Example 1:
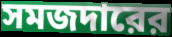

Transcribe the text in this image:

সমজদারের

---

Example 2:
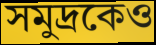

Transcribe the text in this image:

সমুদ্রকেও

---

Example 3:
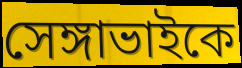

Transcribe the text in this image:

সেঙ্গাভাইকে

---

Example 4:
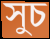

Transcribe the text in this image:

সুচ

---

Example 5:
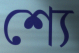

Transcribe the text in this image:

শ্যে